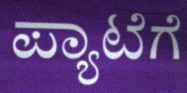
ಪ್ಯಾಟೆಗೆ